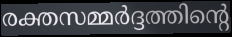
രക്തസമ്മർദ്ദത്തിന്റെ